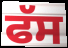
ਫੱਸ